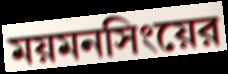
ময়মনসিংয়ের